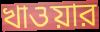
খাওয়ার